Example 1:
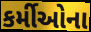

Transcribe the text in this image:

કર્મીઓના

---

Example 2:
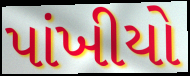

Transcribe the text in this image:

પાંખીયો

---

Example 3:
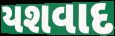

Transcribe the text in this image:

યશવાદ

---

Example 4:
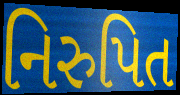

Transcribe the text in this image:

નિરુપિત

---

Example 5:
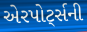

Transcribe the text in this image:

એરપોર્ટ્સની